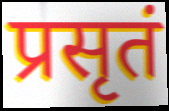
प्रसृतं